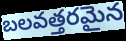
బలవత్తరమైన